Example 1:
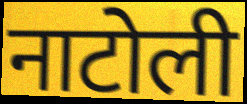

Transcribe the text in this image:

नाटोली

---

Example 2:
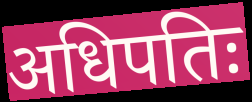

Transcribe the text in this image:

अधिपतिः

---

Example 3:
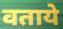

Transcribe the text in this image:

वताये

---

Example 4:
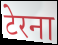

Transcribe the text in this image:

टेरना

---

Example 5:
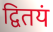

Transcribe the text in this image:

द्वितयं